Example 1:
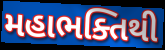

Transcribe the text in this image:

મહાભક્તિથી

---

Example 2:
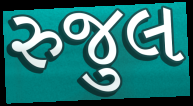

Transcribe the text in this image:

રુજુલ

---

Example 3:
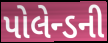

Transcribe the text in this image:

પોલેન્ડની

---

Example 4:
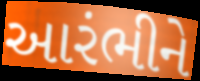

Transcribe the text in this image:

આરંભીને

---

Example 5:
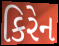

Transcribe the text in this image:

કિરેન